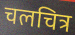
चलचित्र